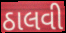
ઠાલવી